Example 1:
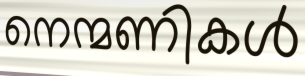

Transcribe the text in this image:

നെന്മണികൾ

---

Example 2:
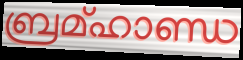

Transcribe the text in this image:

ബ്രമ്ഹാണ്ഡ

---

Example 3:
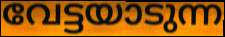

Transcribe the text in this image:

വേട്ടയാടുന്ന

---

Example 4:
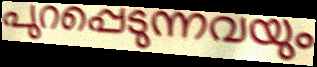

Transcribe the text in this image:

പുറപ്പെടുന്നവയും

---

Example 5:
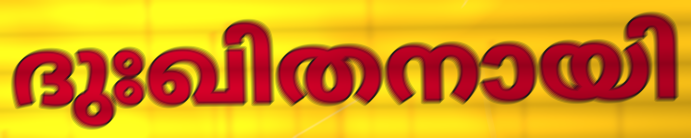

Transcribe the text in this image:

ദുഃഖിതനായി